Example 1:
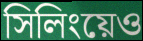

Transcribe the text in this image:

সিলিংয়েও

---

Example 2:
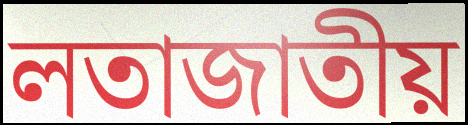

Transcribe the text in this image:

লতাজাতীয়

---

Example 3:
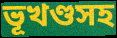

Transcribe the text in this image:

ভূখণ্ডসহ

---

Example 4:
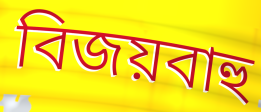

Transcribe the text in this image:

বিজয়বাহু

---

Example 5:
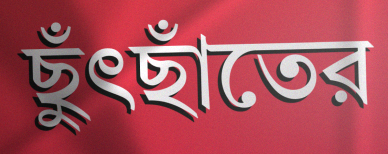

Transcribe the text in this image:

ছুঁৎছাঁতের